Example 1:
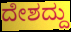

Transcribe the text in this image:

ದೇಶದ್ದು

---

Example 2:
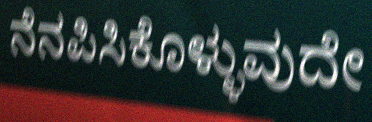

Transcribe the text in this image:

ನೆನಪಿಸಿಕೊಳ್ಳುವುದೇ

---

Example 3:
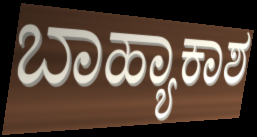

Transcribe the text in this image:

ಬಾಹ್ಯಾಕಾಶ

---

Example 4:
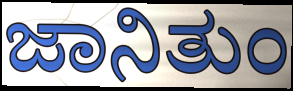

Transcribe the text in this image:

ಜಾನಿತುಂ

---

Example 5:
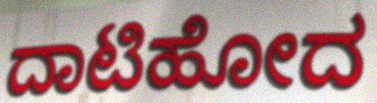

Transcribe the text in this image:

ದಾಟಿಹೋದ